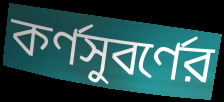
কর্ণসুবর্ণের